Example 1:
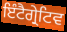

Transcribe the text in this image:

ਇੰਟੈਗ੍ਰੇਟਿਵ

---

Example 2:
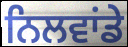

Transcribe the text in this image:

ਨਿਲਵਾਂਡੇ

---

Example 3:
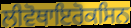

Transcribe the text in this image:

ਲੀਵੋਥਾਇਰੋਕਸਿਨ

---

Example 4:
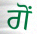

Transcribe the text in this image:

ਗੋਂ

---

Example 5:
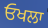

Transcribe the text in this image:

ਓਖਲਾ